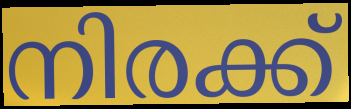
നിരക്ക്